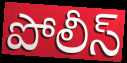
పోలీస్